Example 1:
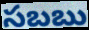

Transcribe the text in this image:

సబబు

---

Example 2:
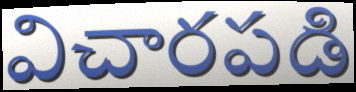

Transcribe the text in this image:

విచారపడి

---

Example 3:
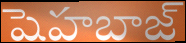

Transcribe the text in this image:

షెహబాజ్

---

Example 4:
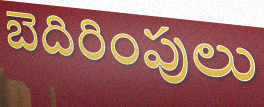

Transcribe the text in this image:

బెదిరింపులు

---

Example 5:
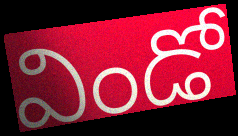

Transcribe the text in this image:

విండో